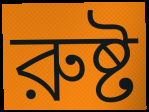
রুষ্ট